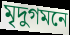
মৃদুগমনে